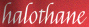
halothane